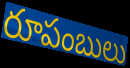
రూపంబులు